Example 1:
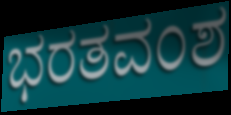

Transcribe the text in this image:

ಭರತವಂಶ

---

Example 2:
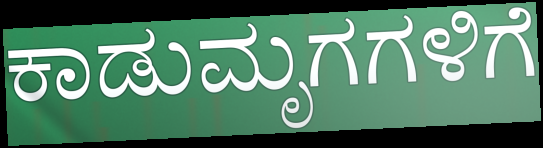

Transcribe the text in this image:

ಕಾಡುಮೃಗಗಳಿಗೆ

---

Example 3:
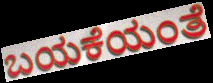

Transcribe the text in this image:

ಬಯಕೆಯಂತೆ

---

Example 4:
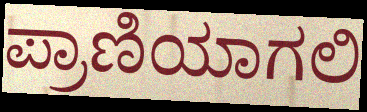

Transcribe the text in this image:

ಪ್ರಾಣಿಯಾಗಲಿ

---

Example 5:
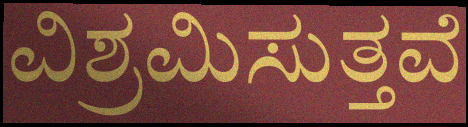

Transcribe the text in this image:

ವಿಶ್ರಮಿಸುತ್ತವೆ